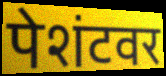
पेशंटवर